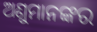
ଅଣୁମାନଙ୍କର